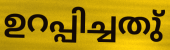
ഉറപ്പിച്ചതു്